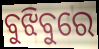
ବୁଝିବୁରେ